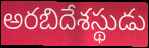
అరబిదేశస్థుడు